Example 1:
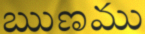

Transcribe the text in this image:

ఋణము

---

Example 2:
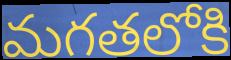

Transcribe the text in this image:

మగతలోకి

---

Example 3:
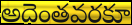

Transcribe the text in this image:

అదెంతవరకూ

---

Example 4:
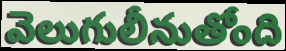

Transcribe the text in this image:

వెలుగులీనుతోంది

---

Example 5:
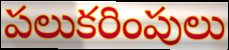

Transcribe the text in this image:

పలుకరింపులు